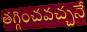
తగ్గించవచ్చనే